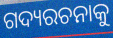
ଗଦ୍ୟରଚନାକୁ